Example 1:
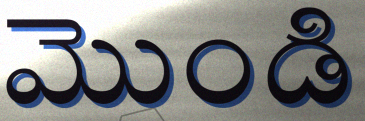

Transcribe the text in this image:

మొండి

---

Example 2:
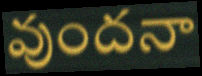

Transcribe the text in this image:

వుందనా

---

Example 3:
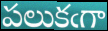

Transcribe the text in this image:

పలుకఁగా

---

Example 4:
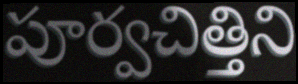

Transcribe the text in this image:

పూర్వచిత్తిని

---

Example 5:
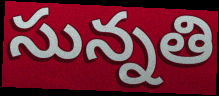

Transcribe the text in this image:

సున్నతి